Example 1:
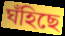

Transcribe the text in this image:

ঘঁহিছে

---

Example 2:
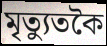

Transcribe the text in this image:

মৃত্যুতকৈ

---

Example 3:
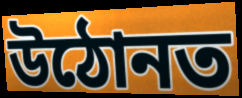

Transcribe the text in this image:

উঠোনত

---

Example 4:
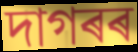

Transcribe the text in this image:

দাগৰৰ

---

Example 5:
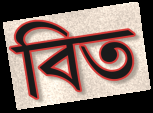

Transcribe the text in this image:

বিত